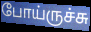
போய்ருச்சு